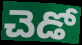
చెడో